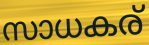
സാധകര്